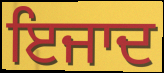
ਇਜਾਦ